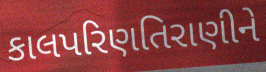
કાલપરિણતિરાણીને